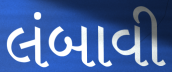
લંબાવી